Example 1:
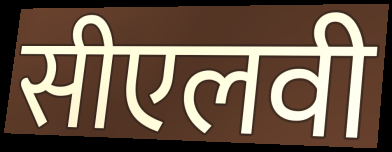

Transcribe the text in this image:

सीएलवी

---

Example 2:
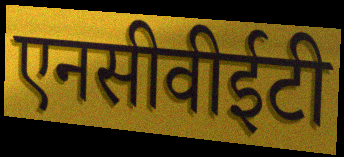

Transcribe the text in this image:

एनसीवीईटी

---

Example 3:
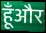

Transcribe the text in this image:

हूँऔर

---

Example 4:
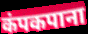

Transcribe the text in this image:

कंपकपाना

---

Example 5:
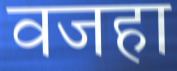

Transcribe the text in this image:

वजहा